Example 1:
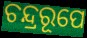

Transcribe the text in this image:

ଚନ୍ଦ୍ରରୂପେ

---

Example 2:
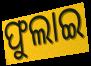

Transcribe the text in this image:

ଫୁଲାଇ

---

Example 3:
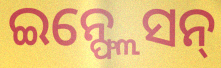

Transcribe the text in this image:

ଇନ୍ଫ୍ଲେସନ୍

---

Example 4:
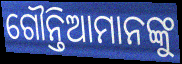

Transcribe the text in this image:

ଗୌନ୍ତିଆମାନଙ୍କୁ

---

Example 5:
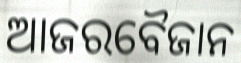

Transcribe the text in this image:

ଆଜରବୈଜାନ